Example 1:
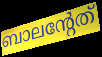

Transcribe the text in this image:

ബാലന്റേത്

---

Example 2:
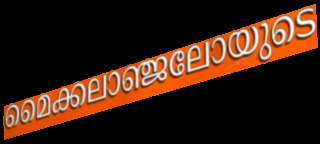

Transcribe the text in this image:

മൈക്കലാഞ്ജലോയുടെ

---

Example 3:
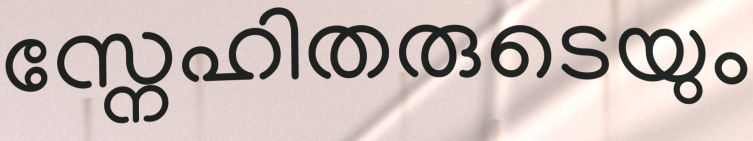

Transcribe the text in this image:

സ്നേഹിതരുടെയും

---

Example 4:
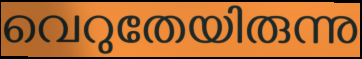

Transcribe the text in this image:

വെറുതേയിരുന്നു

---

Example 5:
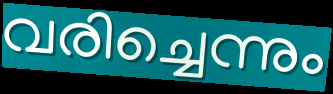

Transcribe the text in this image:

വരിച്ചെന്നും